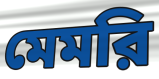
মেমরি